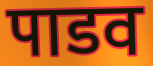
पाडव